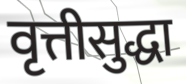
वृत्तीसुद्धा